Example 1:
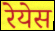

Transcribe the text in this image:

रेयेस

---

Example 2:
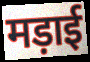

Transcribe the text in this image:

मड़ाई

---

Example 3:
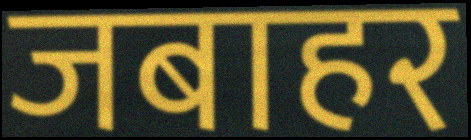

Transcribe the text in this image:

जबाहर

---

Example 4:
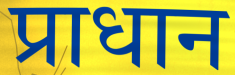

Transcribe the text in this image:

प्राधान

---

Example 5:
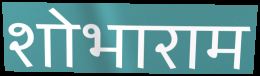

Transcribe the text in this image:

शोभाराम